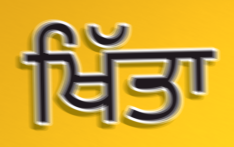
ਖਿੱਤਾ